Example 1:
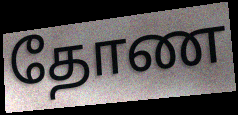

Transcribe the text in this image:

தோண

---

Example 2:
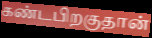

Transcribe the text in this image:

கண்டபிறகுதான்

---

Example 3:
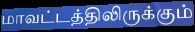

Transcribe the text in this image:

மாவட்டத்திலிருக்கும்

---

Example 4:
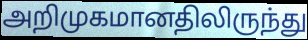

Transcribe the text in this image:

அறிமுகமானதிலிருந்து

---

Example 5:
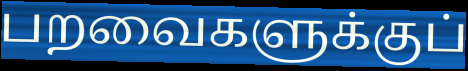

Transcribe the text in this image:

பறவைகளுக்குப்